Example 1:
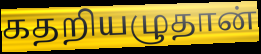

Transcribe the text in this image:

கதறியழுதான்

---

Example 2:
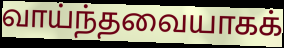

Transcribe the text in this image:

வாய்ந்தவையாகக்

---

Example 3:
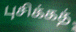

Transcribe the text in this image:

புசிக்கத்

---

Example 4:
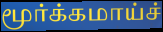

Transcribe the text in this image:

மூர்க்கமாய்ச்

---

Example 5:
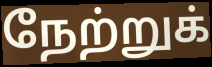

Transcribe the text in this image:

நேற்றுக்